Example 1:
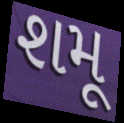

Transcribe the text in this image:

શમૂ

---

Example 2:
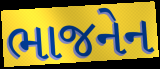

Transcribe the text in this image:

ભાજનેન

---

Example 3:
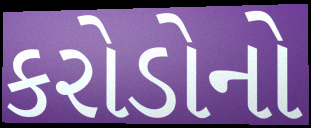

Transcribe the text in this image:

કરોડોનો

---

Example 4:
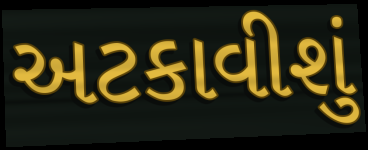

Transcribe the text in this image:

અટકાવીશું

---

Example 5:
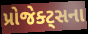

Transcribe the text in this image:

પ્રોજેક્ટ્સના